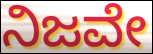
ನಿಜವೇ